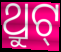
ଥ୍ରୁଟ୍